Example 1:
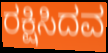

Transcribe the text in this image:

ರಕ್ಷಿಸಿದವ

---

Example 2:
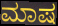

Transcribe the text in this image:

ಮಾಷ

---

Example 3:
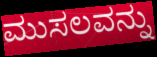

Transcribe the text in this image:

ಮುಸಲವನ್ನು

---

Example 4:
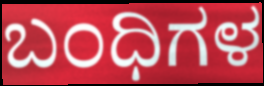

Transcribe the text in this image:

ಬಂಧಿಗಳ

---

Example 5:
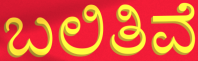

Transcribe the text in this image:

ಬಲಿತಿವೆ